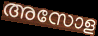
അസോള